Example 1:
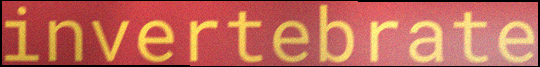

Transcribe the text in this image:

invertebrate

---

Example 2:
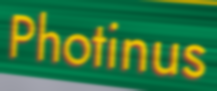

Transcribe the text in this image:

Photinus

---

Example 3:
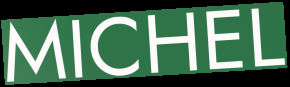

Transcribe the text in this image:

MICHEL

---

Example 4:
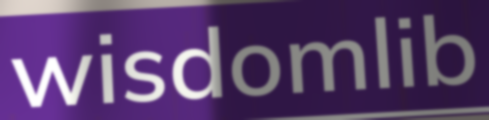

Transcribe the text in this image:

wisdomlib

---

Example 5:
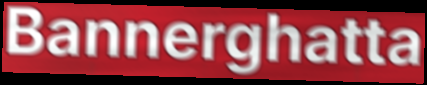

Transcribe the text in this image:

Bannerghatta